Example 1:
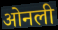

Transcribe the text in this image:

ओनली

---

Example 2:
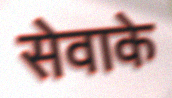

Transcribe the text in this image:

सेवाके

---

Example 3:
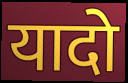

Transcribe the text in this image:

यादो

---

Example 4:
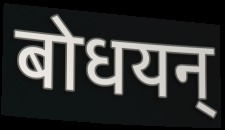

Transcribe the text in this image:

बोधयन्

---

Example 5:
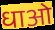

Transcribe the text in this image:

धाओ